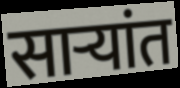
साऱ्यांत